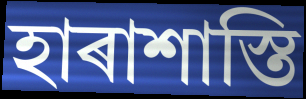
হাৰাশাস্তি